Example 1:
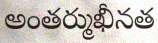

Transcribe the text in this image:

అంతర్ముఖీనత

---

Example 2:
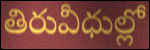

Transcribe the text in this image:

తిరువీధుల్లో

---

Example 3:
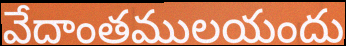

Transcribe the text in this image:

వేదాంతములయందు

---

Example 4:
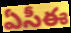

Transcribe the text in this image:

ఏసీఈ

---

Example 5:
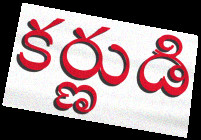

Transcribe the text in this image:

కర్ణుడి